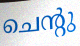
ചെന്റു